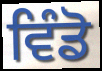
ਵਿੰਡੋ